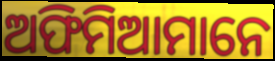
ଅଫିମିଆମାନେ